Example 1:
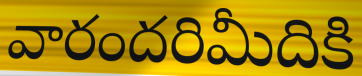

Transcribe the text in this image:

వారందరిమీదికి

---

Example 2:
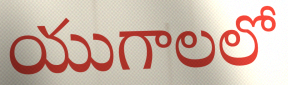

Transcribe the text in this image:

యుగాలలో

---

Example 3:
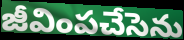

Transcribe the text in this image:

జీవింపచేసెను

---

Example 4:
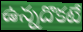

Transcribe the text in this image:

ఉన్నదొకటే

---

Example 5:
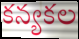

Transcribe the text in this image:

కన్యకల